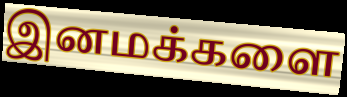
இனமக்களை